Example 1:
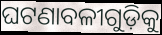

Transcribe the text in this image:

ଘଟଣାବଳୀଗୁଡ଼ିକୁ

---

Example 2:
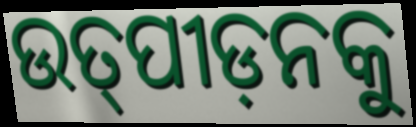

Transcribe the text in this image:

ଉତ୍‌ପୀଡ଼ନକୁ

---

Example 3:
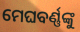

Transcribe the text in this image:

ମେଘବର୍ଣ୍ଣଙ୍କୁ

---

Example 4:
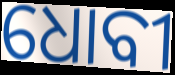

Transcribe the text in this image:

ଧୋବୀ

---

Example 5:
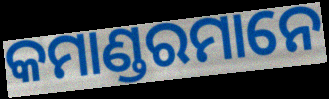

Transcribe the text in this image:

କମାଣ୍ଡରମାନେ